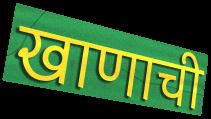
खाणाची